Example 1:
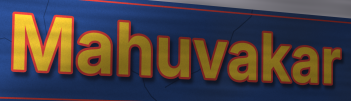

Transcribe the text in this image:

Mahuvakar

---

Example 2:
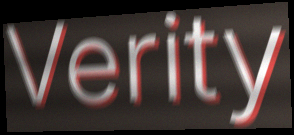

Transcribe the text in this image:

Verity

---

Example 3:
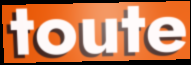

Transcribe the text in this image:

toute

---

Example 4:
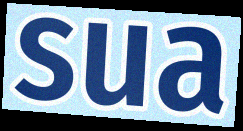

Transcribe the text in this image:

sua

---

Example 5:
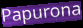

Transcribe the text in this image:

Papurona